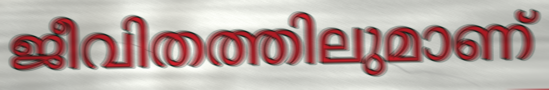
ജീവിതത്തിലുമാണ്